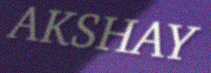
AKSHAY